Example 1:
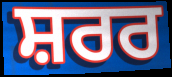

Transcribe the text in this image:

ਸ਼ਰਰ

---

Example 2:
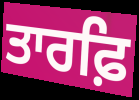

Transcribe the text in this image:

ਤਾਰਫ਼ਿ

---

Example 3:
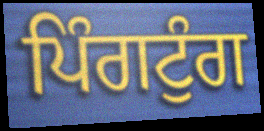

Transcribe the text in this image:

ਪਿੰਗਟੁੰਗ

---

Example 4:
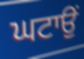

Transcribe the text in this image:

ਘਟਾਉਂ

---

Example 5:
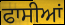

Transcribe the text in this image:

ਫਾਸੀਆਂ